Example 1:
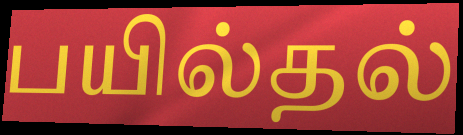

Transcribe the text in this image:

பயில்தல்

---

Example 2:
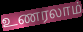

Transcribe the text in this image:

உணரலாம்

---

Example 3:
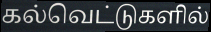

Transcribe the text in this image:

கல்வெட்டுகளில்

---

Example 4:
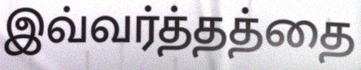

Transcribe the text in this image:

இவ்வர்த்தத்தை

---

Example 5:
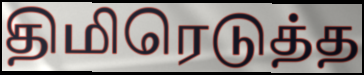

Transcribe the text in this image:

திமிரெடுத்த